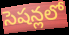
సెషన్లలో